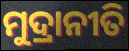
ମୁଦ୍ରାନୀତି